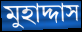
মুহাদ্দাস